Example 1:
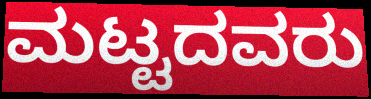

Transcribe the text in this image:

ಮಟ್ಟದವರು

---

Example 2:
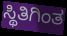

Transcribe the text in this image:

ಸ್ಥಿತಿಗಿಂತ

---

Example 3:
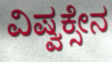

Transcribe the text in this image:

ವಿಷ್ವಕ್ಸೇನ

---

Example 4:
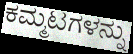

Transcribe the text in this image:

ಕಮ್ಮಟಗಳನ್ನು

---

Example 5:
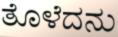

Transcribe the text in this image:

ತೊಳೆದನು